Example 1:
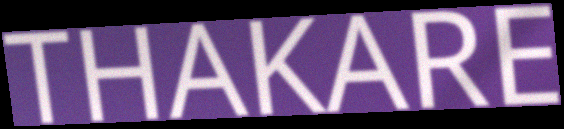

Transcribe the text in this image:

THAKARE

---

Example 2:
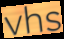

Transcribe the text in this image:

vhs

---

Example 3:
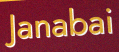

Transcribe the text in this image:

Janabai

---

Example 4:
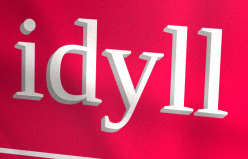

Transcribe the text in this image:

idyll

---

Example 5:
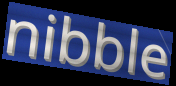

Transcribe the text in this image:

nibble